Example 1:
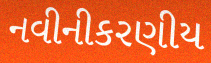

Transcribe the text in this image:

નવીનીકરણીય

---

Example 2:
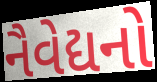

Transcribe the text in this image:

નૈવેદ્યનો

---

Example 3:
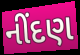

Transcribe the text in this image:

નીંદણ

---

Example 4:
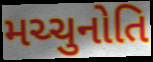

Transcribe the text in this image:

મચ્ચુનોતિ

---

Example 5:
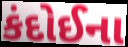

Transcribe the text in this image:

કંદોઈના